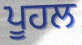
ਪੂਹਲ